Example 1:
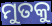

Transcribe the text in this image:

ମୁତକୁ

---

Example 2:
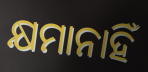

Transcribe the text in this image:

କ୍ଷମାନାହିଁ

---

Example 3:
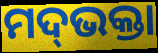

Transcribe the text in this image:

ମଦ୍‌ଭକ୍ତା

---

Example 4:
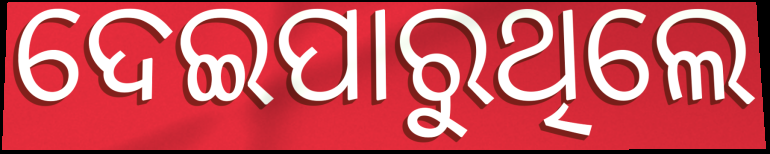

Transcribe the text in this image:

ଦେଇପାରୁଥିଲେ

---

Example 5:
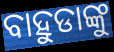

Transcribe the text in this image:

ବାହୁଡାଙ୍କୁ